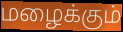
மழைக்கும்